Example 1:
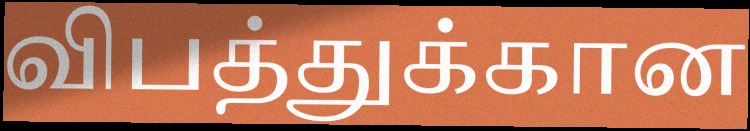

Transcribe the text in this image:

விபத்துக்கான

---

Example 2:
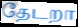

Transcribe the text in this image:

தேடறா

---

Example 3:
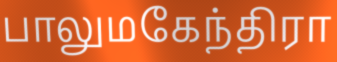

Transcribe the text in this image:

பாலுமகேந்திரா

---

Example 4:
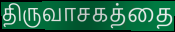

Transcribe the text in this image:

திருவாசகத்தை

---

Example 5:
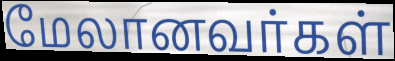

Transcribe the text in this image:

மேலானவர்கள்